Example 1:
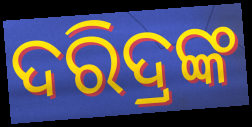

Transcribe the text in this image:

ଦରିଦ୍ରଙ୍କ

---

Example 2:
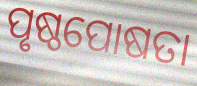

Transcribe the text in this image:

ପୃଷ୍ଠପୋଷତା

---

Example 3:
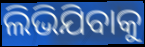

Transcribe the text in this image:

ଲିଭିଯିବାକୁ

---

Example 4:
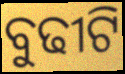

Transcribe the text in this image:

ବୁଢୀଟି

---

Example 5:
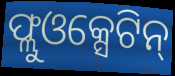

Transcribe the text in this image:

ଫ୍ଲୁଓକ୍ସେଟିନ୍